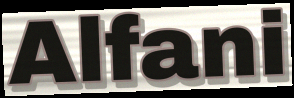
Alfani